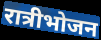
रात्रीभोजन